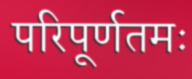
परिपूर्णतमः